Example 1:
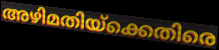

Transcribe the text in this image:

അഴിമതിയ്ക്കെതിരെ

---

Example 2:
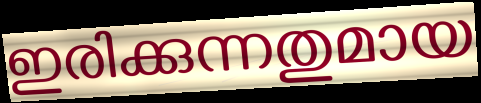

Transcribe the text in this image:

ഇരിക്കുന്നതുമായ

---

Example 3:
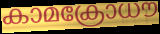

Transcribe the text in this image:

കാമക്രോധൗ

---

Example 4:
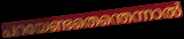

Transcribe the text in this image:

പറയേണ്ടതെന്തെന്നാൽ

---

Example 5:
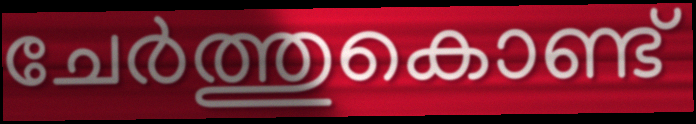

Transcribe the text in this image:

ചേർത്തുകൊണ്ട്